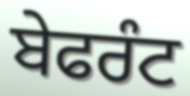
ਬੇਫਰੰਟ